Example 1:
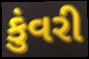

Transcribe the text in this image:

કુંવરી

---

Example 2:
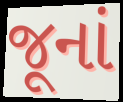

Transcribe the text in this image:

જૂનાં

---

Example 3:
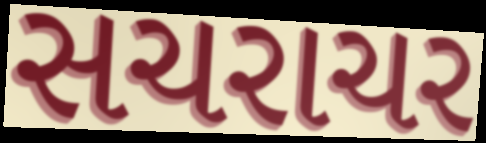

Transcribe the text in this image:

સચરાચર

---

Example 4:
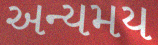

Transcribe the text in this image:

અન્યમય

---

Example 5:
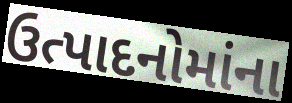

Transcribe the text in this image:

ઉત્પાદનોમાંના